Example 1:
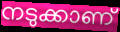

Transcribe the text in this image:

നടുക്കാണ്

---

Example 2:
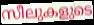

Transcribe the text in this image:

സീലുകളുടെ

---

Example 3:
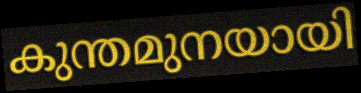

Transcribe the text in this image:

കുന്തമുനയായി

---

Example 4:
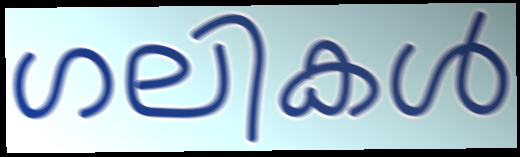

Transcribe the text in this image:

ഗലികൾ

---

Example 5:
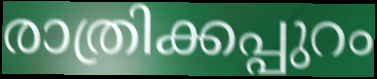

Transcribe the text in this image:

രാത്രിക്കപ്പുറം